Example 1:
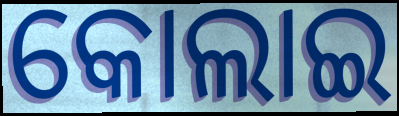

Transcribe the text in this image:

କୋଲାଇ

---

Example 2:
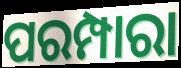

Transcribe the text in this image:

ପରମ୍ପାରା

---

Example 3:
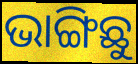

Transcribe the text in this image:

ଭାଙ୍ଗିଛୁ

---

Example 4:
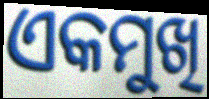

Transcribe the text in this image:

ଏକମୁଖି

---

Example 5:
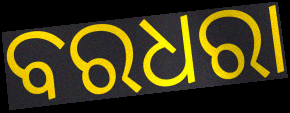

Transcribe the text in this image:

ବରଧରା